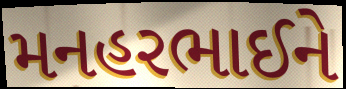
મનહરભાઈને